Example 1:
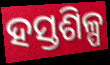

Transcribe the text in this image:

ହସ୍ତଶିଳ୍ପ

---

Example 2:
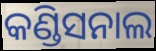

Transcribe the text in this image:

କଣ୍ଡିସନାଲ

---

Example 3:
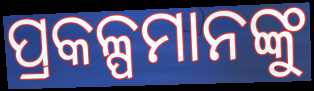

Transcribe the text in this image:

ପ୍ରକଳ୍ପମାନଙ୍କୁ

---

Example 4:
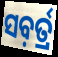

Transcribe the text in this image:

ସବ଼ର୍ତ୍ର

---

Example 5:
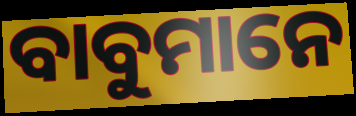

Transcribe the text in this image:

ବାବୁମାନେ